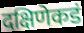
दक्षिणेकडं